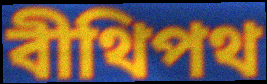
বীথিপথ